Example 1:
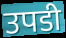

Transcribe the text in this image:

उपडी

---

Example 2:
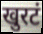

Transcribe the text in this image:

खुरटं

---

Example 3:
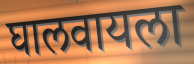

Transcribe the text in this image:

घालवायला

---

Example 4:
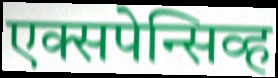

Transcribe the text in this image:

एक्सपेन्सिव्ह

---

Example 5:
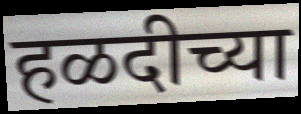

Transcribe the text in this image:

हळदीच्या